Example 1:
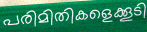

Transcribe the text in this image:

പരിമിതികളെക്കൂടി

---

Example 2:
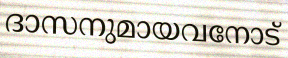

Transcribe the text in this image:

ദാസനുമായവനോട്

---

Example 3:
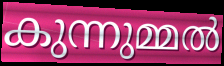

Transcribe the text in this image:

കുന്നുമ്മൽ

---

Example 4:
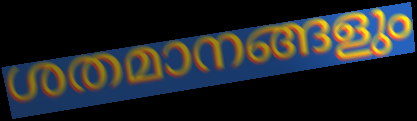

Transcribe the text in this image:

ശതമാനങ്ങളും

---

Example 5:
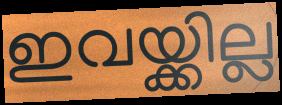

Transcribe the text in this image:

ഇവയ്ക്കില്ല